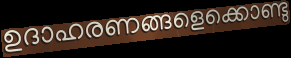
ഉദാഹരണങ്ങളെക്കൊണ്ടു